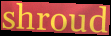
shroud